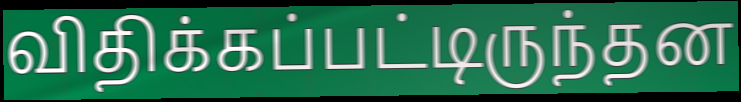
விதிக்கப்பட்டிருந்தன